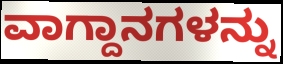
ವಾಗ್ದಾನಗಳನ್ನು